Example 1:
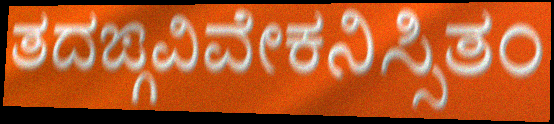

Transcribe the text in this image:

ತದಙ್ಗವಿವೇಕನಿಸ್ಸಿತಂ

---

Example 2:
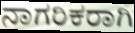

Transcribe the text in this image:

ನಾಗರಿಕರಾಗಿ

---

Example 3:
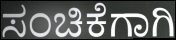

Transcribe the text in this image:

ಸಂಚಿಕೆಗಾಗಿ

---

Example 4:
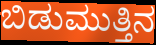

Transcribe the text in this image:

ಬಿಡುಮುತ್ತಿನ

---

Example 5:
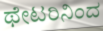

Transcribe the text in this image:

ಥೇಟರಿನಿಂದ